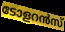
ടോളറൻസ്